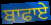
ਬਾਫਾਏ